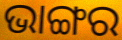
ଭାଙ୍ଗର